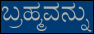
ಬ್ರಹ್ಮವನ್ನು